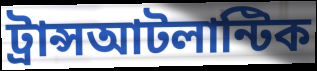
ট্রান্সআটলান্টিক